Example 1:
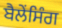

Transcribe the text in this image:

ਬੈਲੇਂਸਿੰਗ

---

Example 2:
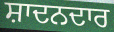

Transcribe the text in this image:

ਸ਼ਾਦਨਦਾਰ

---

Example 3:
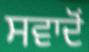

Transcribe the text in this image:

ਸਵਾਦੋਂ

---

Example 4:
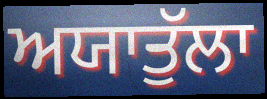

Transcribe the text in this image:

ਅਯਾਤੁੱਲਾ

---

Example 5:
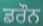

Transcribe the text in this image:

ਡਰੌਨ